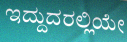
ಇದ್ದುದರಲ್ಲಿಯೇ